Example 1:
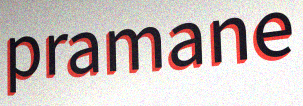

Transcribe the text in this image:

pramane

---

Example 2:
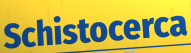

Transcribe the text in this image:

Schistocerca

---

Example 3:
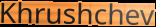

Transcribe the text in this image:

Khrushchev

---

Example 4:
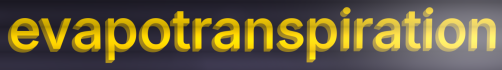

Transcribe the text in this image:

evapotranspiration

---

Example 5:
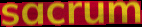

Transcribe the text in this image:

sacrum